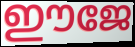
ഈജേ